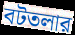
বটতলার